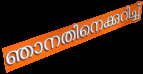
ഞാനതിനെക്കുറിച്ച്